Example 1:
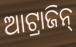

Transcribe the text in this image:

ଆଟ୍ରାଜିନ୍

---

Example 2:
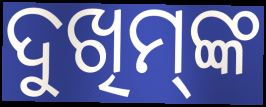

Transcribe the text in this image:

ଦୁଖିମ୍‌ଙ୍କ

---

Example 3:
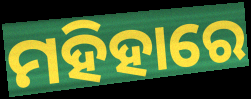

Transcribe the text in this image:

ମହିହାରେ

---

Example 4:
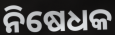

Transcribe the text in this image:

ନିଷେଧକ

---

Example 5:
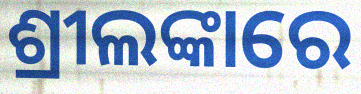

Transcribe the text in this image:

ଶ୍ରୀଲଙ୍କାରେ